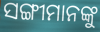
ସଙ୍ଗୀମାନଙ୍କୁ